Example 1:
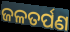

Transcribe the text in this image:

ଜଳତର୍ପଣ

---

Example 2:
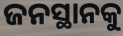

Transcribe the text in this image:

ଜନସ୍ଥାନକୁ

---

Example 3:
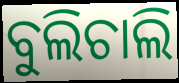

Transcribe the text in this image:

ବୁଲିଚାଲି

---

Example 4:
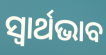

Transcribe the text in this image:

ସ୍ଵାର୍ଥଭାବ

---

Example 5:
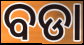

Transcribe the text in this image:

ବଡା